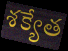
శక్యేత